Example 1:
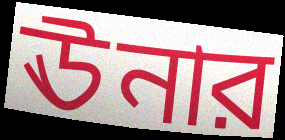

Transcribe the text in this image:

ঊনার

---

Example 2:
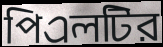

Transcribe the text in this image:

পিএলটির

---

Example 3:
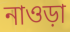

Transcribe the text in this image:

নাওড়া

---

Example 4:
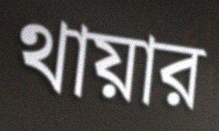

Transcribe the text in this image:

থায়ার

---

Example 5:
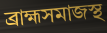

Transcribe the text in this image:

ব্রাহ্মসমাজস্থ